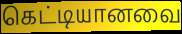
கெட்டியானவை